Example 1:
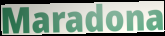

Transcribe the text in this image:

Maradona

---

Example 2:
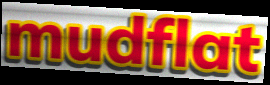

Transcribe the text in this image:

mudflat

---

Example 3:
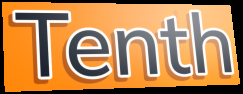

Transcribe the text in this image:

Tenth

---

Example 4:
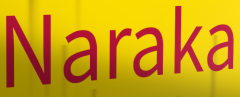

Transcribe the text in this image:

Naraka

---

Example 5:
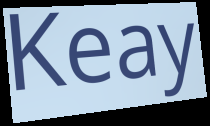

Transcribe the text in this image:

Keay